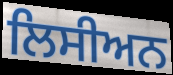
ਲਿਸੀਅਨ